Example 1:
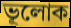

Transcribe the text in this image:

ভূলোক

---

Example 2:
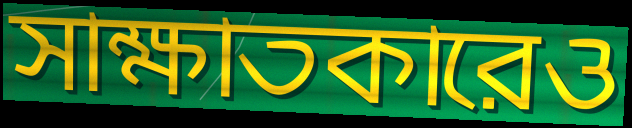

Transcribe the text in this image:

সাক্ষাতকারেও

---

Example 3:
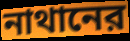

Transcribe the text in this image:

নাথানের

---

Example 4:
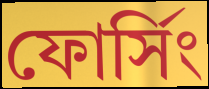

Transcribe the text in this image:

ফোর্সিং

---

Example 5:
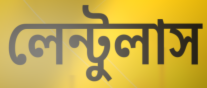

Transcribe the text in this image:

লেন্টুলাস